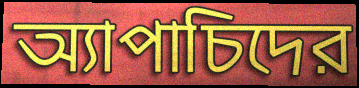
অ্যাপাচিদের